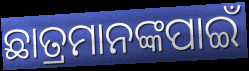
ଛାତ୍ରମାନଙ୍କପାଇଁ